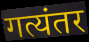
गत्यंतर